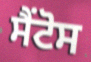
ਸੈਂਟੋਸ